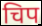
चिप